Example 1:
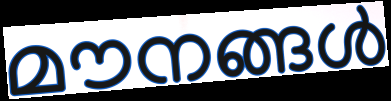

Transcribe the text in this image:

മൗനങ്ങൾ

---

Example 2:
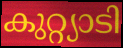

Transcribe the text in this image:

കുറ്റ്യാടി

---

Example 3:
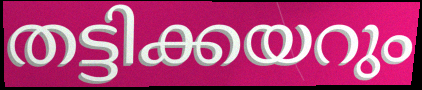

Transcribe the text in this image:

തട്ടിക്കയറും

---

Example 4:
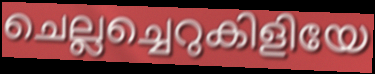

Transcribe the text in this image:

ചെല്ലച്ചെറുകിളിയേ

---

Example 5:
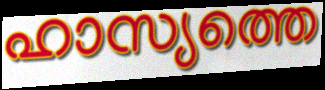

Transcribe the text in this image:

ഹാസ്യത്തെ